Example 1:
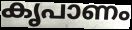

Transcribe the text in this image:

കൃപാണം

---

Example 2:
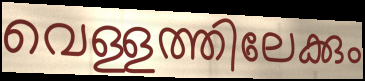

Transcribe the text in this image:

വെള്ളത്തിലേക്കും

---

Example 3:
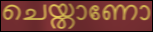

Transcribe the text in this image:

ചെയ്താണോ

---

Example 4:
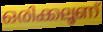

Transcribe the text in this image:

ഒരിക്കലൂണ്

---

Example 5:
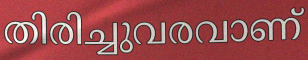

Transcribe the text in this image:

തിരിച്ചുവരവാണ്